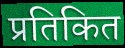
प्रतिकित